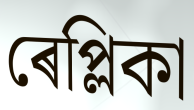
ৰেপ্লিকা